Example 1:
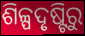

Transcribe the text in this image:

ଶିଳ୍ପଦୃଷ୍ଟିରୁ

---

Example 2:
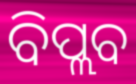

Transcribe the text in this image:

ବିପ୍ଲବ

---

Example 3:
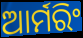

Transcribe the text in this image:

ଆର୍ମରିଂ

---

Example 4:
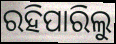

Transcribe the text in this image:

ରହିପାରିଲୁ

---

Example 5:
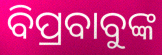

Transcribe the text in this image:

ବିପ୍ରବାବୁଙ୍କ